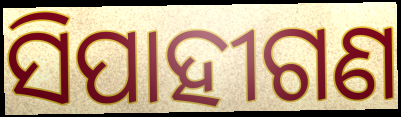
ସିପାହୀଗଣ